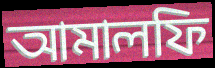
আমালফি